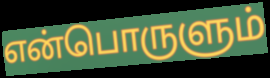
என்பொருளும்